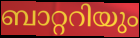
ബാറ്ററിയും